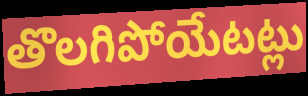
తొలగిపోయేటట్లు